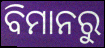
ବିମାନରୁ